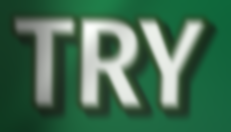
TRY